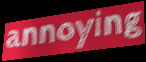
annoying